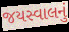
જયસ્વાલનું